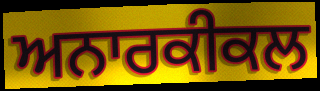
ਅਨਾਰਕੀਕਲ